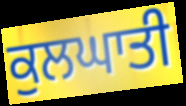
ਕੁਲਘਾਤੀ